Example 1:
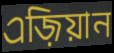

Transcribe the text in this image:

এজ়িয়ান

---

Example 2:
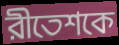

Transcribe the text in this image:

রীতেশকে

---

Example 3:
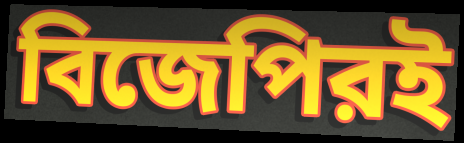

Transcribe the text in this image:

বিজেপিরই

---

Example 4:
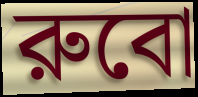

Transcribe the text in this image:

রুবো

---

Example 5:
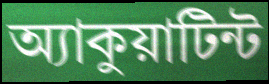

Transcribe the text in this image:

অ্যাকুয়াটিন্ট